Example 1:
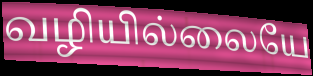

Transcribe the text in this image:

வழியில்லையே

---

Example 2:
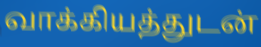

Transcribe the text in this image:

வாக்கியத்துடன்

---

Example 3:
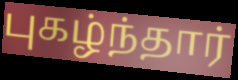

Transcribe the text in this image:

புகழ்ந்தார்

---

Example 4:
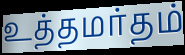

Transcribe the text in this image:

உத்தமர்தம்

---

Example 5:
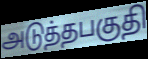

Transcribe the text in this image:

அடுத்தபகுதி